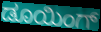
ಡೂಯಿಂಗ್